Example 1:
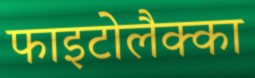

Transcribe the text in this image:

फाइटोलैक्का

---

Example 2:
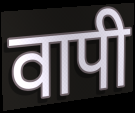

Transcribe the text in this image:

वापी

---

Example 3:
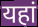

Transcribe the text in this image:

यहां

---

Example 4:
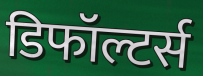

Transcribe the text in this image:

डिफॉल्टर्स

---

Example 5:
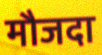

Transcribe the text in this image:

मौजदा